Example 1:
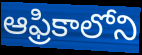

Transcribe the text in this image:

ఆఫ్రికాలోని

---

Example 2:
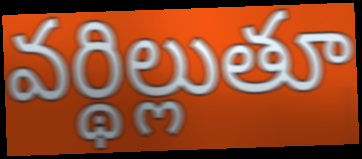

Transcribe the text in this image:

వర్థిల్లుతూ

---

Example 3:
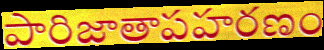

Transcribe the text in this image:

పారిజాతాపహరణం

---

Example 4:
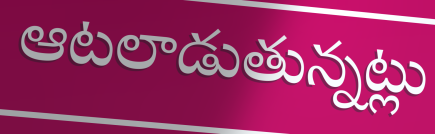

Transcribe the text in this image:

ఆటలాడుతున్నట్లు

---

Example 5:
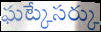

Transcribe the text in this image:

ఘట్కేసర్కు